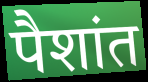
पैशांत